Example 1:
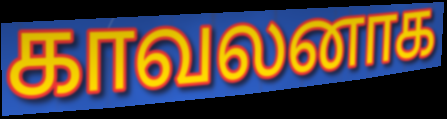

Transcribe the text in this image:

காவலனாக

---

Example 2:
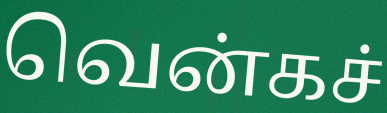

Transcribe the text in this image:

வென்கச்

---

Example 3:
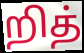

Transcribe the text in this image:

றித்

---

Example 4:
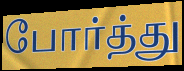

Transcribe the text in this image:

போர்த்து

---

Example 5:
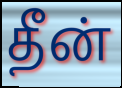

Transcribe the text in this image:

தீன்